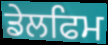
ਡੇਲਫਿਮ